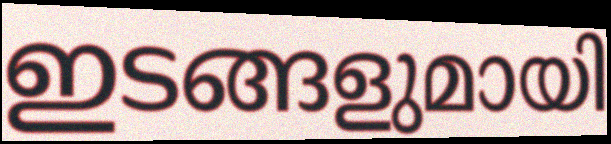
ഇടങ്ങളുമായി